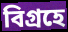
বিগ্রহে